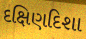
દક્ષિણદિશા